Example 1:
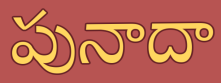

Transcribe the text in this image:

పునాదా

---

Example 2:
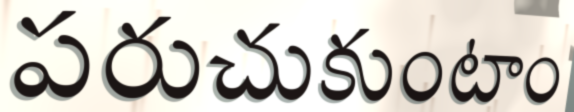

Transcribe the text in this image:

పరుచుకుంటాం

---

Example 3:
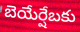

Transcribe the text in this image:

బెయేర్షేబకు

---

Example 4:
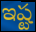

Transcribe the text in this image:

ఇష్ట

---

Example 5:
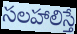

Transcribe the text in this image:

సలహాలిస్తే